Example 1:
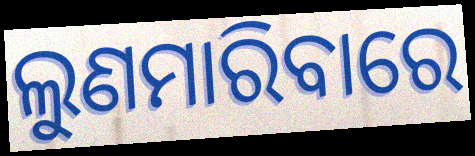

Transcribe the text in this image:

ଲୁଣମାରିବାରେ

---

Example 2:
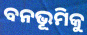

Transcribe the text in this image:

ବନଭୂମିକୁ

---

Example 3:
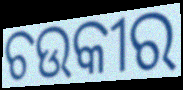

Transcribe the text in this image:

ଚଉକୀର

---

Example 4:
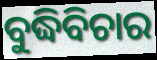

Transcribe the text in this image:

ବୁଦ୍ଧିବିଚାର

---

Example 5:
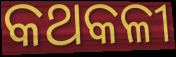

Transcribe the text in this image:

କଥକଳୀ